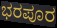
ಭರಪೂರ